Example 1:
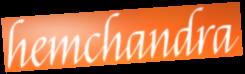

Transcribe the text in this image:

hemchandra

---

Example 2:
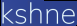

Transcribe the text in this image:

kshne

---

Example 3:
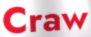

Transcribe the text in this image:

Craw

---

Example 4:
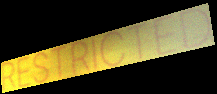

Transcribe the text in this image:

RESTRICTED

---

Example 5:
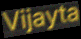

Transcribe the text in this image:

Vijayta